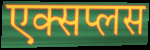
एक्सप्लस